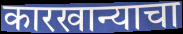
कारखान्याचा